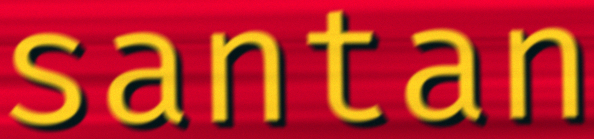
santan